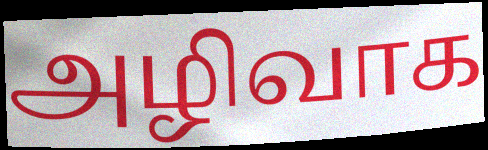
அழிவாக